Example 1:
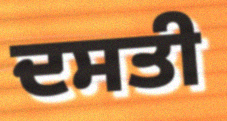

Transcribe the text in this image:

ਦਸਤੀ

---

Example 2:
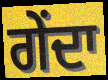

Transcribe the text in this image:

ਗੇਂਦਾ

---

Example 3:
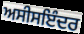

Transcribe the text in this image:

ਅਸੀਸਇੰਦਰ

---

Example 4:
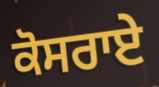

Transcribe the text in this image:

ਕੋਸਰਾਏ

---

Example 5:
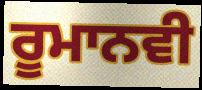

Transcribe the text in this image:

ਰੂਮਾਨਵੀ